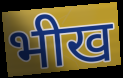
भीख